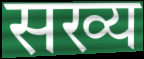
सख्य